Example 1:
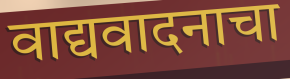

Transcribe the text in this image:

वाद्यवादनाचा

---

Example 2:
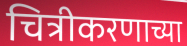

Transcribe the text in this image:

चित्रीकरणाच्या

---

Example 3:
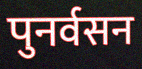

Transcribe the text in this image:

पुनर्वसन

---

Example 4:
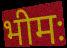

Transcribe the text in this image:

भीमः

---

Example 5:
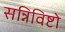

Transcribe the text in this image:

सन्निविष्टो